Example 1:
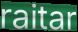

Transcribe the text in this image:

raitar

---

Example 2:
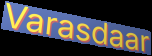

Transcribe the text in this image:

Varasdaar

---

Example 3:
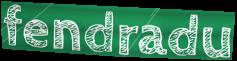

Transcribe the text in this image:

fendradu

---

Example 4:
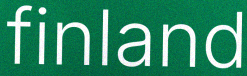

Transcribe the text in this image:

finland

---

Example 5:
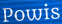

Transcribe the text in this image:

Powis